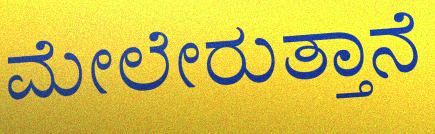
ಮೇಲೇರುತ್ತಾನೆ